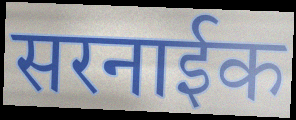
सरनाईक